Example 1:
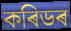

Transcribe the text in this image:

কৰিডৰ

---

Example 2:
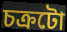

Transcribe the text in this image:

চক্ৰটো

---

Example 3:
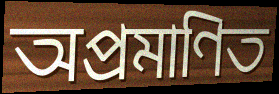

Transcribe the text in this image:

অপ্ৰমাণিত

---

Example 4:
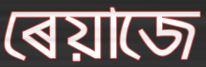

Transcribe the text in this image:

ৰেয়াজে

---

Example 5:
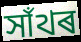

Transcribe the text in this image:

সাঁথৰ